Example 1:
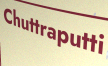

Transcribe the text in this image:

Chuttraputti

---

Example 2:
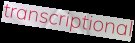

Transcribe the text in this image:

transcriptional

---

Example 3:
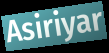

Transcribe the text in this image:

Asiriyar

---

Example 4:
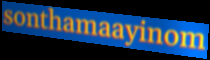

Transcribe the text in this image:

sonthamaayinom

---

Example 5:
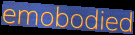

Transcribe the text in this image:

emobodied